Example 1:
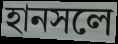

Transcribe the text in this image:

হানসলে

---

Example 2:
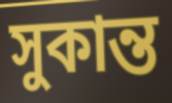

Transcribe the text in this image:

সুকান্ত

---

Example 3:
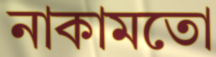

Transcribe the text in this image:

নাকামতো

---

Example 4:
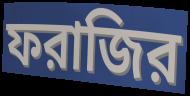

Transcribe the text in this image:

ফরাজির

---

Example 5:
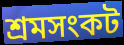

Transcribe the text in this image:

শ্রমসংকট